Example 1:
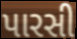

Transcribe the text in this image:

પારસી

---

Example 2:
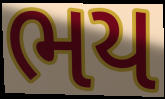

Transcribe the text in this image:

ભય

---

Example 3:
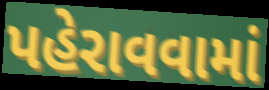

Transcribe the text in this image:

પહેરાવવામાં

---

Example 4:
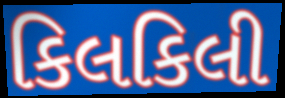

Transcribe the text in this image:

કિલકિલી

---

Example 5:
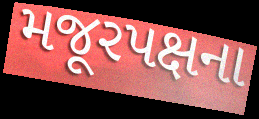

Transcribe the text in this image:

મજૂરપક્ષના